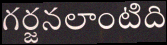
గర్జనలాంటిది